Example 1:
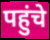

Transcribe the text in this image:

पहुंचे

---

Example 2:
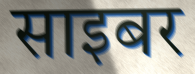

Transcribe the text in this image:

साइबर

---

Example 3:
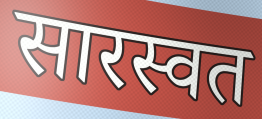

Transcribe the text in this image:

सारस्वत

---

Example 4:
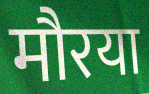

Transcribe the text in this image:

मौरया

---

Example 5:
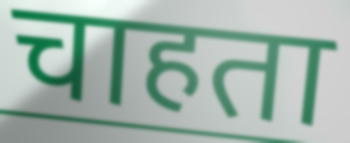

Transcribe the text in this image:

चाहता